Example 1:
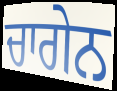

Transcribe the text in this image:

ਚਾਗੇਨ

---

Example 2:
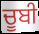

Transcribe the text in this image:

ਚੂਬੀ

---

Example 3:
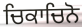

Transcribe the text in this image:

ਚਿਕਾਚਿਨੋ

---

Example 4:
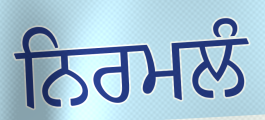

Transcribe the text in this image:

ਨਿਰਮਲੰ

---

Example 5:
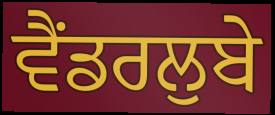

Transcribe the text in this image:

ਵੈਂਡਰਲੁਬੇ